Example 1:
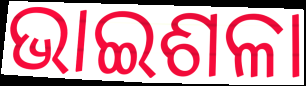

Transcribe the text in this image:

ଭାଇଶଳା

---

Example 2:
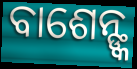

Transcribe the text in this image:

ବାଶେନ୍ଙ୍କ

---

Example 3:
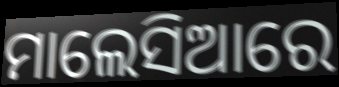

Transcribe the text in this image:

ମାଲେସିଆରେ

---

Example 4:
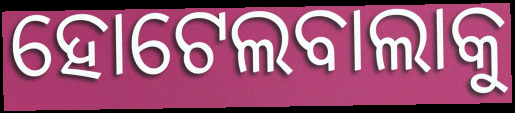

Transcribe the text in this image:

ହୋଟେଲବାଲାକୁ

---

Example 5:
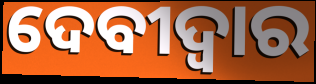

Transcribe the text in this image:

ଦେବୀଦ୍ବାର